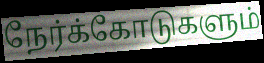
நேர்க்கோடுகளும்